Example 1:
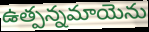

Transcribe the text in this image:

ఉత్పన్నమాయెను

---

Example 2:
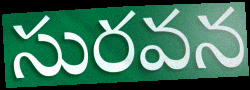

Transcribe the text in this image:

సురవన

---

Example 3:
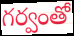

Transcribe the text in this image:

గర్వంతో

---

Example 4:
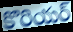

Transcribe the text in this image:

కొరియర్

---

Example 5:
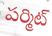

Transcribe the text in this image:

పర్మిట్